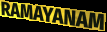
RAMAYANAM